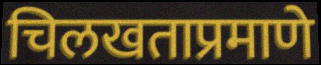
चिलखताप्रमाणे